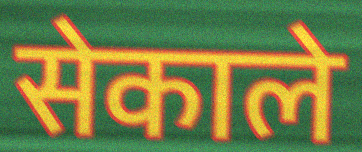
सेकाले